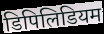
डिपिलिडियम